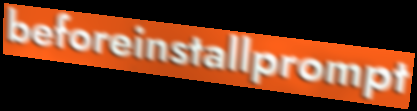
beforeinstallprompt